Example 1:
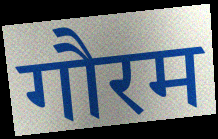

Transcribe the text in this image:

गौरम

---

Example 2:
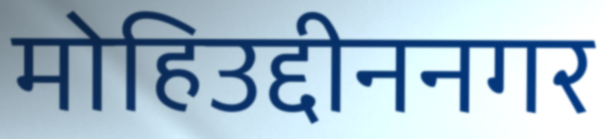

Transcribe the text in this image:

मोहिउद्दीननगर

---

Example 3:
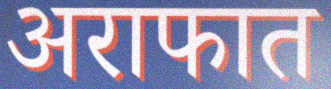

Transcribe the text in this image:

अराफात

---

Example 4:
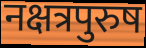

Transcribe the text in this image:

नक्षत्रपुरुष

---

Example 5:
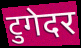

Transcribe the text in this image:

टुगेदर